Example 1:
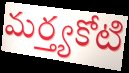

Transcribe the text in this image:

మర్త్యకోటి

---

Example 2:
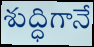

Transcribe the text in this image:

శుద్ధిగానే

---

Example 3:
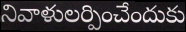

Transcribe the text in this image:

నివాళులర్పించేందుకు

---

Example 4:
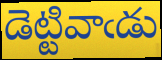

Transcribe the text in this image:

డెట్టివాఁడు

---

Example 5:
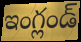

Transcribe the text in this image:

ఇంగ్లండ్